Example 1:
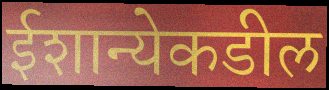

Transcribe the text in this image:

ईशान्येकडील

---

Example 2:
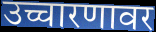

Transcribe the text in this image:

उच्चारणावर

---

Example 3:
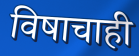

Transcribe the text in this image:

विषाचाही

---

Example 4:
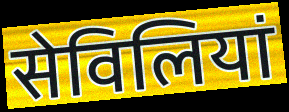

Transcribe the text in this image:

सेविलियां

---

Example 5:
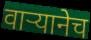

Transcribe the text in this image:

वाऱ्यानेच